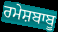
ਰਮੇਸ਼ਬਾਬੂ